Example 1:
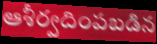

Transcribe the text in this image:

ఆశీర్వదింపబడిన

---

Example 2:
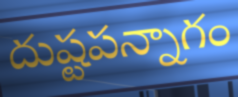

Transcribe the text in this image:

దుష్టపన్నాగం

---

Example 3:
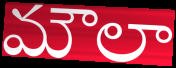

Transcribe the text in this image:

మౌలా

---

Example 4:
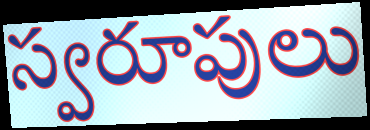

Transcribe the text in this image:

స్వరూపులు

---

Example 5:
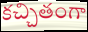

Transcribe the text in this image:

కచ్చితంగా